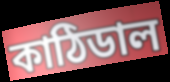
কাঠিডাল